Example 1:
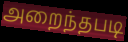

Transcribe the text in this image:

அறைந்தபடி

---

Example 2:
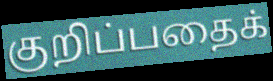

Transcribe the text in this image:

குறிப்பதைக்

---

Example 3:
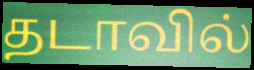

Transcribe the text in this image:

தடாவில்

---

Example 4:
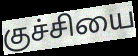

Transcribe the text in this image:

குச்சியை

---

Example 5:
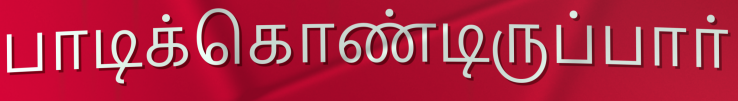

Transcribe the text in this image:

பாடிக்கொண்டிருப்பார்